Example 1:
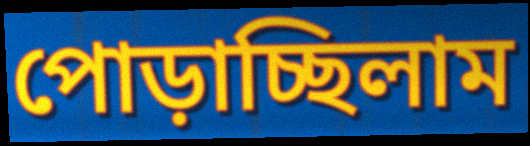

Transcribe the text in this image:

পোড়াচ্ছিলাম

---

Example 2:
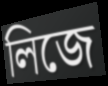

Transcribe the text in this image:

লিজে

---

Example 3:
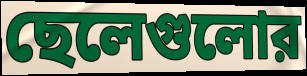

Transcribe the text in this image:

ছেলেগুলোর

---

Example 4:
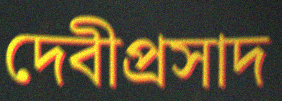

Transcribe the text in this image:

দেবীপ্রসাদ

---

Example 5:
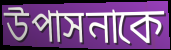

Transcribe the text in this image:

উপাসনাকে